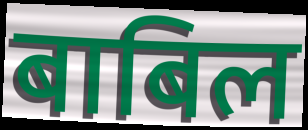
बाबिल